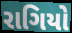
રાગિયો